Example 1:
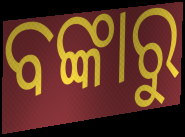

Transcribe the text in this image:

ବଙ୍କାରୁ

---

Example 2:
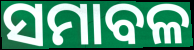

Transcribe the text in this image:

ସମାବଳ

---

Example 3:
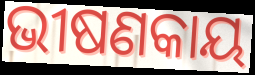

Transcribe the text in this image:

ଭୀଷଣକାୟ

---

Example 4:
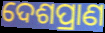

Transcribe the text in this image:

ଦେଶପ୍ରାଣ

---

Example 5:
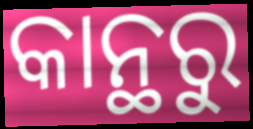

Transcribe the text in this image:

କାନ୍ଥରୁ